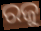
ରଜୁ